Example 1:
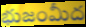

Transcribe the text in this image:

భుజంమీద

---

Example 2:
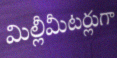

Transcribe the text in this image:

మిల్లీమీటర్లుగా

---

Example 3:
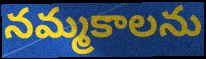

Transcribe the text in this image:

నమ్మకాలను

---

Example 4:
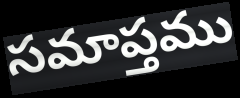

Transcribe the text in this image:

సమాప్తము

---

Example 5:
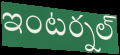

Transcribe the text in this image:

ఇంటర్నల్